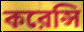
করেন্সি